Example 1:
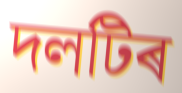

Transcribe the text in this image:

দলটিৰ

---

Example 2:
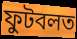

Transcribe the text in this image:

ফুটবলত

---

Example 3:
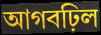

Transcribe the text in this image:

আগবঢ়িল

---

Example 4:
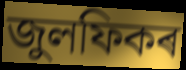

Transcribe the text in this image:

জুলফিকৰ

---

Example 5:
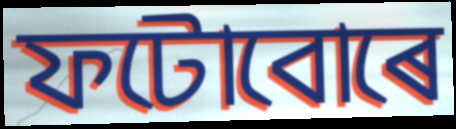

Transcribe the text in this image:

ফটোবোৰে